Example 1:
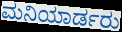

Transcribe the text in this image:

ಮನಿಯಾರ್ಡರು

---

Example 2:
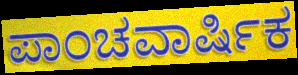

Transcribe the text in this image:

ಪಾಂಚವಾರ್ಷಿಕ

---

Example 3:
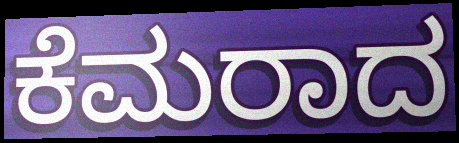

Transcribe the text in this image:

ಕೆಮರಾದ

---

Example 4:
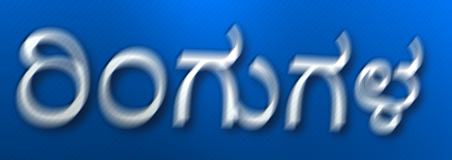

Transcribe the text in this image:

ರಿಂಗುಗಳ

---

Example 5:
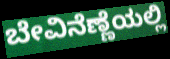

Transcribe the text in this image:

ಬೇವಿನೆಣ್ಣೆಯಲ್ಲಿ